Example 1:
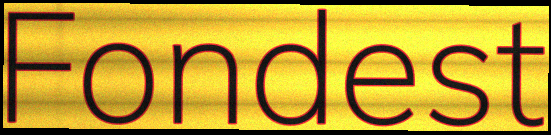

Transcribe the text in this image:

Fondest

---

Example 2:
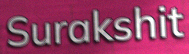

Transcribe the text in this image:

Surakshit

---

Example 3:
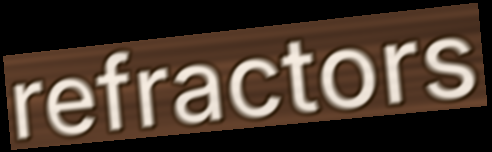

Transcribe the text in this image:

refractors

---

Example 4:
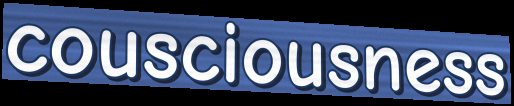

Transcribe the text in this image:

cousciousness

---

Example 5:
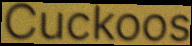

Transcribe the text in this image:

Cuckoos